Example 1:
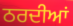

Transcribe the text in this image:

ਠਰਦੀਆਂ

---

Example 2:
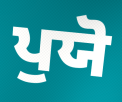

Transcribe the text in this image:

ਪੁਯੋ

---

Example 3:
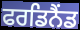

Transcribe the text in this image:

ਫਰਡਿਨੈਂਡ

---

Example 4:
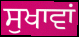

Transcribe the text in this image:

ਸੁਖਾਵਾਂ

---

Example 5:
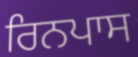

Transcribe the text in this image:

ਰਿਨਪਾਸ